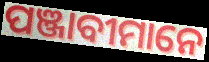
ପଞ୍ଜାବୀମାନେ